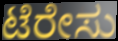
ಟೆರೇಸು